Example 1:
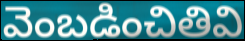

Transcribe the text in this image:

వెంబడించితివి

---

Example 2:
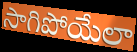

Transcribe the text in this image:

సాగిపోయేలా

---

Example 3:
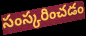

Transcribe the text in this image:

సంస్కరించడం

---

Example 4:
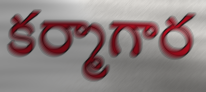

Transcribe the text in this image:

కర్మాగార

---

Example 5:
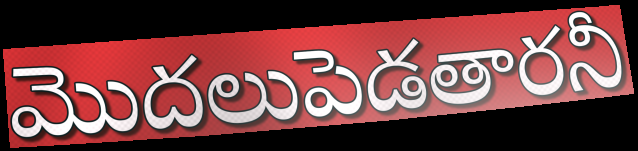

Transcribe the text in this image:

మొదలుపెడతారనీ